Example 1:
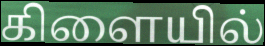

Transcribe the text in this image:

கிளையில்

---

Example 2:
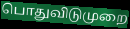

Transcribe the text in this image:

பொதுவிடுமுறை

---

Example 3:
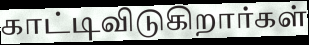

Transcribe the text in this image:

காட்டிவிடுகிறார்கள்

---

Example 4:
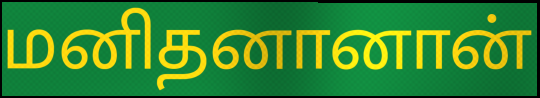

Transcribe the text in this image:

மனிதனானான்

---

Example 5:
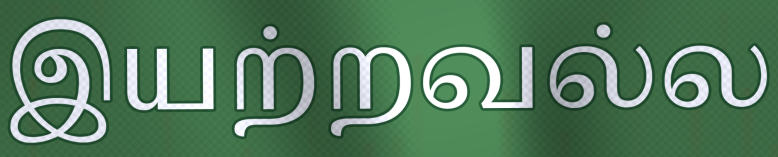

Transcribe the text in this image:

இயற்றவல்ல